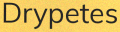
Drypetes